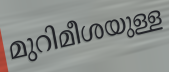
മുറിമീശയുള്ള